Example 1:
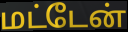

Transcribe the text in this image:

மட்டேன்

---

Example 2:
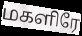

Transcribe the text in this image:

மகளிரே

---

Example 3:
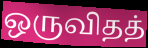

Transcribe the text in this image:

ஒருவிதத்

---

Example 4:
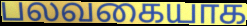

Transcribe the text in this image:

பலவகையாக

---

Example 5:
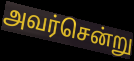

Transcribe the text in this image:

அவர்சென்று